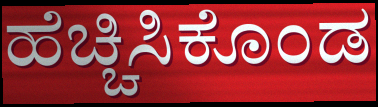
ಹೆಚ್ಚಿಸಿಕೊಂಡ